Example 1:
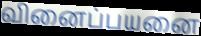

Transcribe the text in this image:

வினைப்பயனை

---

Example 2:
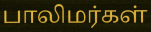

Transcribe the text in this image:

பாலிமர்கள்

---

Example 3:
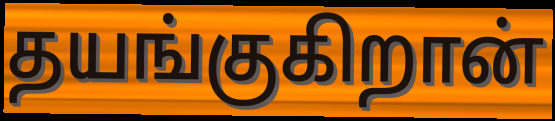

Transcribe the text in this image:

தயங்குகிறான்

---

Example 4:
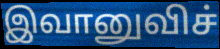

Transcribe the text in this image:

இவானுவிச்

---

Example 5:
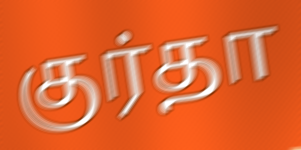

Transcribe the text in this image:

குர்தா